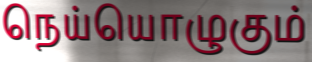
நெய்யொழுகும்